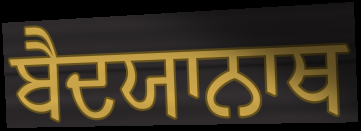
ਬੈਦਯਾਨਾਥ